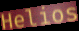
Helios